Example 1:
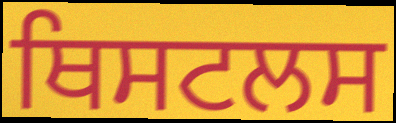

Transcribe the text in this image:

ਥਿਸਟਲਸ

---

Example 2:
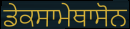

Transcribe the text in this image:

ਡੇਕਸਾਮੇਥਾਸੋਨ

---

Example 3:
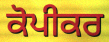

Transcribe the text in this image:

ਕੋਪੀਕਰ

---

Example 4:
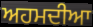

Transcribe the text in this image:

ਅਹਮਦੀਆ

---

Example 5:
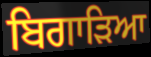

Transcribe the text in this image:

ਬਿਗਾੜਿਆ